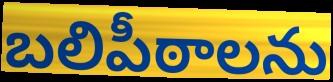
బలిపీఠాలను